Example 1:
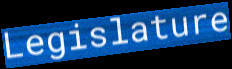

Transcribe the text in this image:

Legislature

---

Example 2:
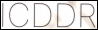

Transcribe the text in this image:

ICDDR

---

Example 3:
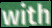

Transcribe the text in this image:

with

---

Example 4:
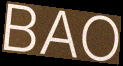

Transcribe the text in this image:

BAO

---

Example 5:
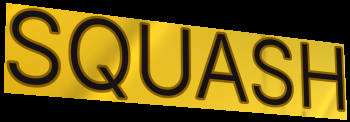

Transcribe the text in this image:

SQUASH